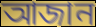
আজান